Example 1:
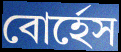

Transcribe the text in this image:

বোর্হেস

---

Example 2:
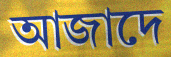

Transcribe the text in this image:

আজাদে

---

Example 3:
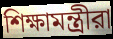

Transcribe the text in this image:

শিক্ষামন্ত্রীরা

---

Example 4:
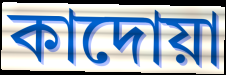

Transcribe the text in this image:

কাদোয়া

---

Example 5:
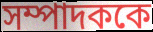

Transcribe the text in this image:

সম্পাদককে